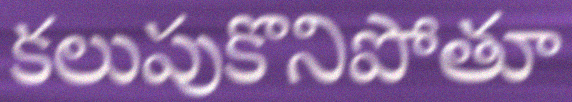
కలుపుకొనిపోతూ